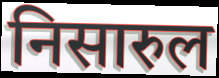
निसारुल